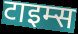
टाइम्स